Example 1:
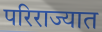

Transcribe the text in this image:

परिराज्यात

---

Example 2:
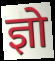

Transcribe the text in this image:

ज्ञो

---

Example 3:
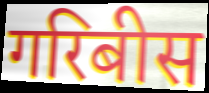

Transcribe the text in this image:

गरिबीस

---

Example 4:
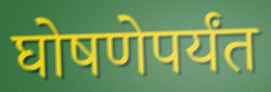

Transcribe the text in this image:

घोषणेपर्यंत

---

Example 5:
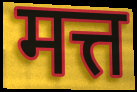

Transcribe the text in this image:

मत्त